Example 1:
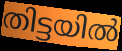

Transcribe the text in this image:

തിട്ടയിൽ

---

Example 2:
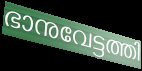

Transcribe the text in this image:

ഭാനുവേട്ടത്തി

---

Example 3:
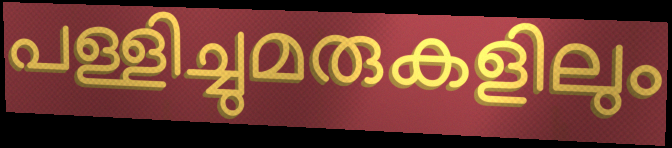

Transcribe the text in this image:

പള്ളിച്ചുമരുകളിലും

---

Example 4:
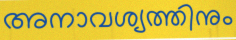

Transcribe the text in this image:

അനാവശ്യത്തിനും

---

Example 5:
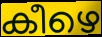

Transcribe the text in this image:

കീഴെ